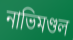
নাভিমণ্ডল